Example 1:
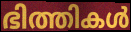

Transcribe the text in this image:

ഭിത്തികൾ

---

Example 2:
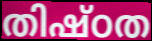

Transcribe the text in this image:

തിഷ്ഠത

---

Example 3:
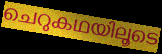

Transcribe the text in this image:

ചെറുകഥയിലൂടെ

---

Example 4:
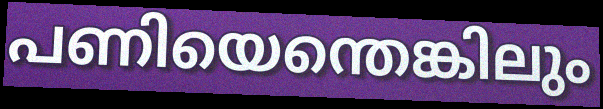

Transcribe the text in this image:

പണിയെന്തെങ്കിലും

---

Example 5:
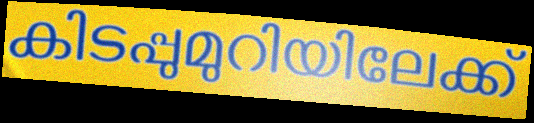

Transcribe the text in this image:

കിടപ്പുമുറിയിലേക്ക്